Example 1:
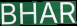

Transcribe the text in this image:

BHAR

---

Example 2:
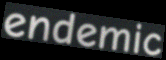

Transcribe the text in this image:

endemic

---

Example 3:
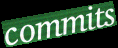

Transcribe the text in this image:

commits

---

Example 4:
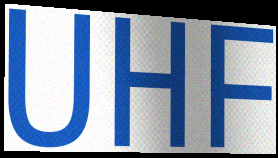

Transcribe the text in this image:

UHF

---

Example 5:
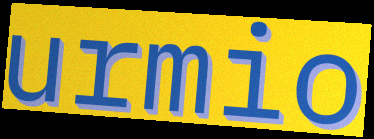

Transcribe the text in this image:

urmio